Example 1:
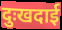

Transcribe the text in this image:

दुःखदाई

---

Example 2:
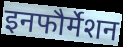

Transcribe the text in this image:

इनफौर्मेशन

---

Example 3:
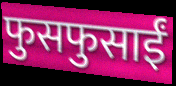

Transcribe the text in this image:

फुसफुसाईं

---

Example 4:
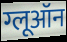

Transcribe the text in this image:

ग्लूऑन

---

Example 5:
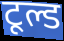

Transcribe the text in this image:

टूल्ड